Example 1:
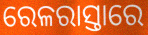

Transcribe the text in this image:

ରେଳରାସ୍ତାରେ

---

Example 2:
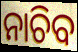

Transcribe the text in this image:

ନାଚିବ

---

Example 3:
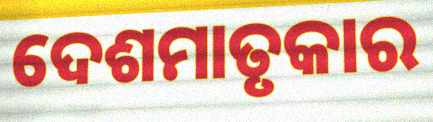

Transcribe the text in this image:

ଦେଶମାତୃକାର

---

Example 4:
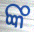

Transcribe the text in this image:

ଙ୍କ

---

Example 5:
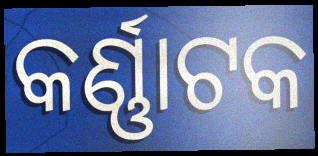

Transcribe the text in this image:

କର୍ଣ୍ଣାଟକ